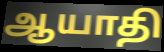
ஆயாதி